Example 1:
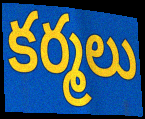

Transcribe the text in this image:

కర్మలు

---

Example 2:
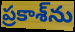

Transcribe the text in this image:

ప్రకాశ్‌ను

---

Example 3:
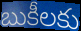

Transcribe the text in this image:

బుకీలకు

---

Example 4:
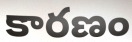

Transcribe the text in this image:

కారణం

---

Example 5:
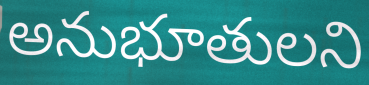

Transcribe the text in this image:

అనుభూతులని